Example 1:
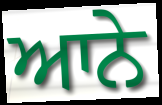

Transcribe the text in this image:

ਆਨੇ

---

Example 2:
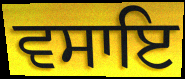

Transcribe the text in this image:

ਵਸਾਇ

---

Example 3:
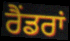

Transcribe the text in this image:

ਰੈਂਡਰਾਂ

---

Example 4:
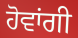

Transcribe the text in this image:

ਹੋਵਾਂਗੀ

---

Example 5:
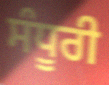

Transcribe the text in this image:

ਸੰਧੂਰੀ